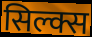
सिल्क्स